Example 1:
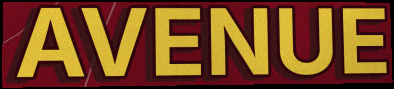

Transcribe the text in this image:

AVENUE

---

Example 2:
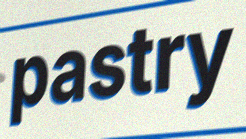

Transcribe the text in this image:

pastry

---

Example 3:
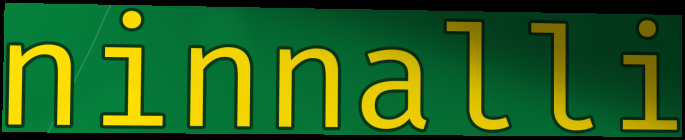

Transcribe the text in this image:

ninnalli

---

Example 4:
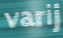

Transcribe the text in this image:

varij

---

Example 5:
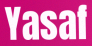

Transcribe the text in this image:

Yasaf